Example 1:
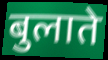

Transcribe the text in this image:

बुलाते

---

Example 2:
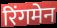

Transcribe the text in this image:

रिंगमेन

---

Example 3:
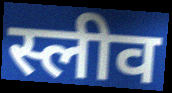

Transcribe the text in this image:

स्लीव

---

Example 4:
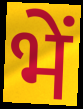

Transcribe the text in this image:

भें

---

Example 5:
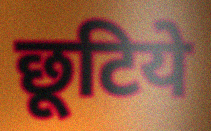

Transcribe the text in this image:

छूटिये